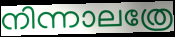
നിന്നാലത്രേ